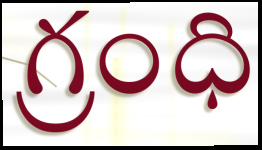
గ్రంధి